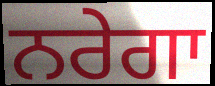
ਨਰੇਗਾ